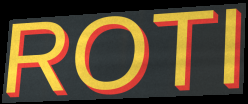
ROTI